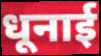
धूनाई